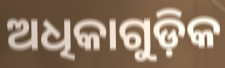
ଅଧିକାଗୁଡ଼ିକ